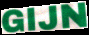
GIJN